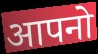
आपनो